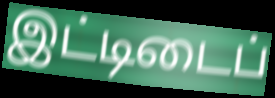
இட்டிடைப்